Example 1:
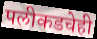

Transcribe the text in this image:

पलीकडचेही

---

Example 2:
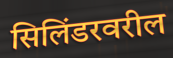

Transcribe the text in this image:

सिलिंडरवरील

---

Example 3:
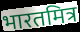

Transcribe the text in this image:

भारतमित्र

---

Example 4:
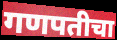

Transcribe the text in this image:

गणपतीचा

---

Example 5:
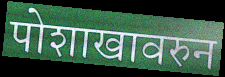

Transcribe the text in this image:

पोशाखावरुन